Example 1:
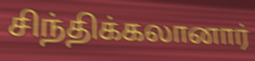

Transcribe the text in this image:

சிந்திக்கலானார்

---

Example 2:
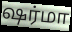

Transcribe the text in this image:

ஷர்மா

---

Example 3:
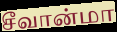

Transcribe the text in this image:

சீவான்மா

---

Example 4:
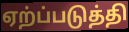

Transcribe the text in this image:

ஏற்ப்படுத்தி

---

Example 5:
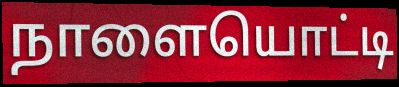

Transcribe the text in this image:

நாளையொட்டி